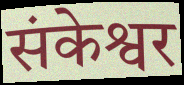
संकेश्वर